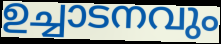
ഉച്ചാടനവും